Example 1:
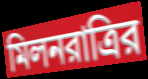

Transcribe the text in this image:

মিলনরাত্রির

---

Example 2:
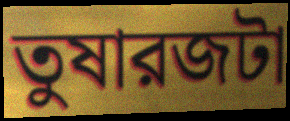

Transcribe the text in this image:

তুষারজটা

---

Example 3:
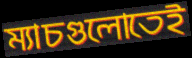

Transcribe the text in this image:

ম্যাচগুলোতেই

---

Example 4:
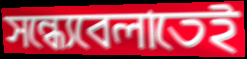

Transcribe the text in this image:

সন্ধ্যেবেলাতেই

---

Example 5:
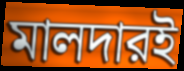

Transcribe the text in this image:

মালদারই